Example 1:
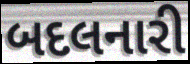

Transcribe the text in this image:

બદલનારી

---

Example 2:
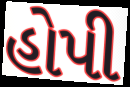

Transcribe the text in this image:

હોપી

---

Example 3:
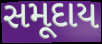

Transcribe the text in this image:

સમૂદાય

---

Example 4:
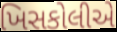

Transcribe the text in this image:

ખિસકોલીએ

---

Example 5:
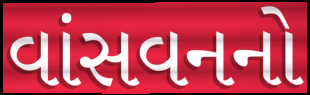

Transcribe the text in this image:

વાંસવનનો